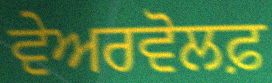
ਵੇਅਰਵੋਲਫ਼